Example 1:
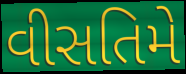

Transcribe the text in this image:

વીસતિમે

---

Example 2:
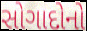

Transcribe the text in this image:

સોગાદોનો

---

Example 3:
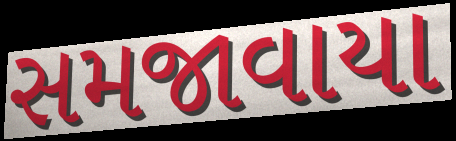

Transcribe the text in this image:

સમજાવાયા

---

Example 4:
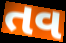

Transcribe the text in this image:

તવ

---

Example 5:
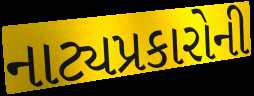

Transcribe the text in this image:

નાટ્યપ્રકારોની